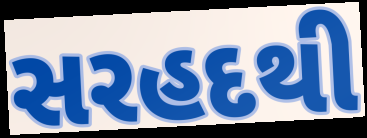
સરહદથી